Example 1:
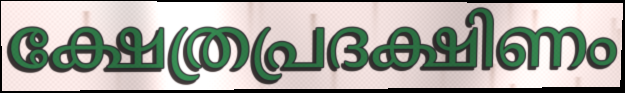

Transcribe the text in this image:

ക്ഷേത്രപ്രദക്ഷിണം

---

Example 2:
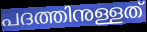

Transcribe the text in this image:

പദത്തിനുള്ളത്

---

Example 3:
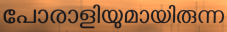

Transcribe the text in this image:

പോരാളിയുമായിരുന്ന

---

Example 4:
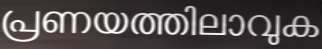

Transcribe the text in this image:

പ്രണയത്തിലാവുക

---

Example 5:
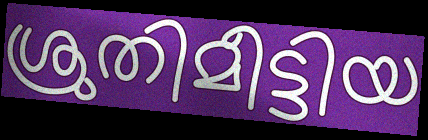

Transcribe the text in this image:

ശ്രുതിമീട്ടിയ